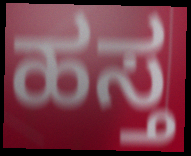
ಹಸ್ತ